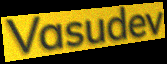
Vasudev